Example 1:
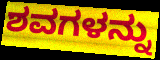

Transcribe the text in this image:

ಶವಗಳನ್ನು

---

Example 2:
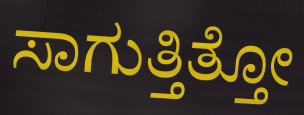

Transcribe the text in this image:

ಸಾಗುತ್ತಿತ್ತೋ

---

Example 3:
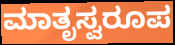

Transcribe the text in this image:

ಮಾತೃಸ್ವರೂಪ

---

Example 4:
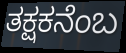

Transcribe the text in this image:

ತಕ್ಷಕನೆಂಬ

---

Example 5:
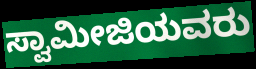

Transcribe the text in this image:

ಸ್ವಾಮೀಜಿಯವರು